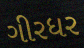
ગીરધર